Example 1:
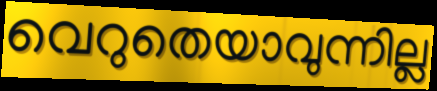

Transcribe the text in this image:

വെറുതെയാവുന്നില്ല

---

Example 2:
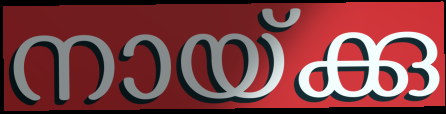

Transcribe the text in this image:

നായ്‌ക്കു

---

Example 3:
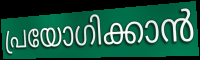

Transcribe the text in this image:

പ്രയോഗിക്കാൻ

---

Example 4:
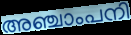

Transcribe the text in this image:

അഞ്ചാംപനി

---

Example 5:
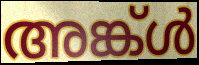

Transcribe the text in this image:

അങ്ക്ൾ